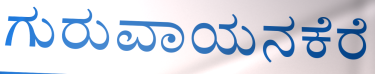
ಗುರುವಾಯನಕೆರೆ